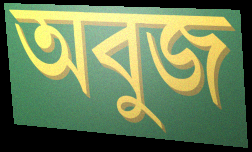
অবুজ